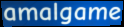
amalgame